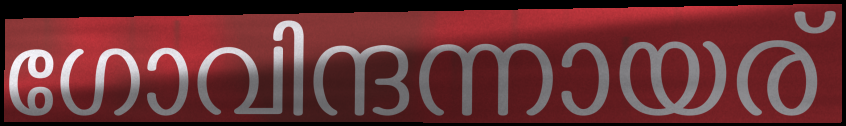
ഗോവിന്ദന്നായര്